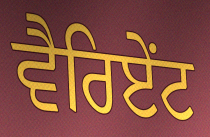
ਵੈਰਿਏਂਟ